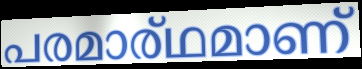
പരമാര്ഥമാണ്